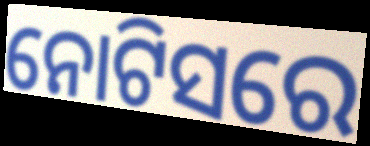
ନୋଟିସରେ